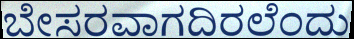
ಬೇಸರವಾಗದಿರಲೆಂದು